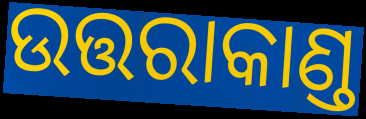
ଉତ୍ତରାକାଣ୍ଡ